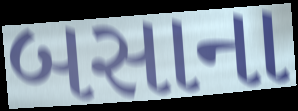
બસાના